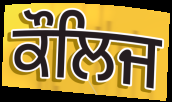
ਕੌਲਿਜ